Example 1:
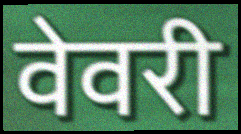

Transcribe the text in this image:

वेवरी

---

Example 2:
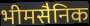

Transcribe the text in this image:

भीमसैनिक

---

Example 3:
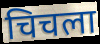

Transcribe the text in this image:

चिचला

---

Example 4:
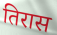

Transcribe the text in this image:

तिरास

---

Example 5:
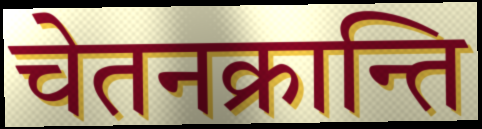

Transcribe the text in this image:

चेतनक्रान्ति